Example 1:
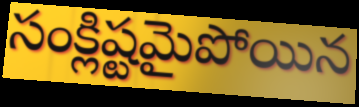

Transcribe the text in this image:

సంక్లిష్టమైపోయిన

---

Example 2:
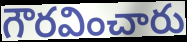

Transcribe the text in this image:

గౌరవించారు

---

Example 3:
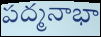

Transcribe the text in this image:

పద్మనాభా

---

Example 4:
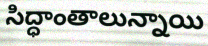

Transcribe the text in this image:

సిద్ధాంతాలున్నాయి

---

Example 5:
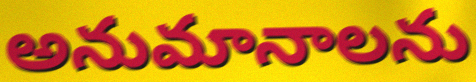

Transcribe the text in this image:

అనుమానాలను